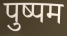
पुष्पम